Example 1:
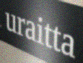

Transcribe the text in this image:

uraitta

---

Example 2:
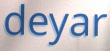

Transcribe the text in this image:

deyar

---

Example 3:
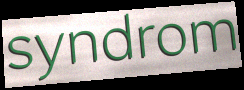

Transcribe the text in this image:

syndrom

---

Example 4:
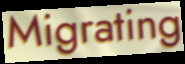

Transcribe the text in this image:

Migrating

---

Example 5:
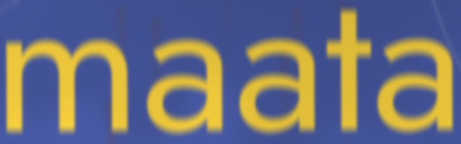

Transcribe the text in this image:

maata